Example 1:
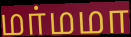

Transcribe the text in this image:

மர்மமா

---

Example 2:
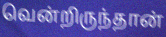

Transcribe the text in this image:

வென்றிருந்தான்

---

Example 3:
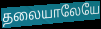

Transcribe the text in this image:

தலையாலேயே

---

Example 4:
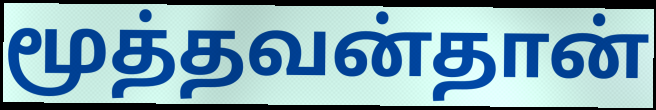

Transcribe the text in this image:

மூத்தவன்தான்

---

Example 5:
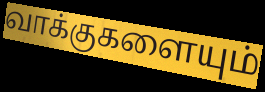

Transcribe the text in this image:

வாக்குகளையும்